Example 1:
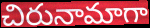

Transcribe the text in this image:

చిరునామాగా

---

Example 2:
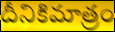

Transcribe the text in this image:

దీనికిమాత్రం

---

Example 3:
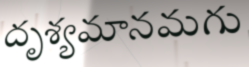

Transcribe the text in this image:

దృశ్యమానమగు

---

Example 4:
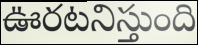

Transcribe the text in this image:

ఊరటనిస్తుంది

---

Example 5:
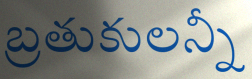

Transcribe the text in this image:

బ్రతుకులన్నీ